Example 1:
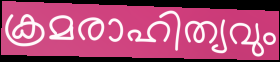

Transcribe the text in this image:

ക്രമരാഹിത്യവും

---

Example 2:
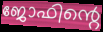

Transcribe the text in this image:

ജോഫിന്റെ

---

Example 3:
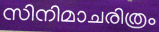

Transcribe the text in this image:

സിനിമാചരിത്രം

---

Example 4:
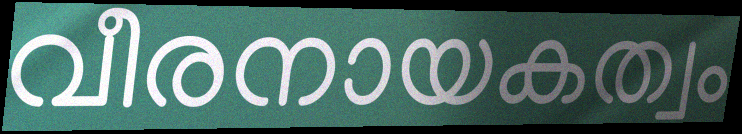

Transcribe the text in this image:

വീരനായകത്വം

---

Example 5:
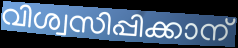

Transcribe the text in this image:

വിശ്വസിപ്പിക്കാന്